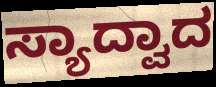
ಸ್ಯಾದ್ವಾದ